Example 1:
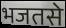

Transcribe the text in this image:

भजतसे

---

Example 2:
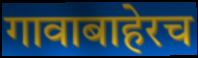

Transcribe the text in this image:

गावाबाहेरच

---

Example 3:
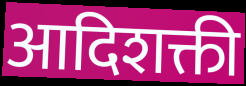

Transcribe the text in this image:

आदिशक्ती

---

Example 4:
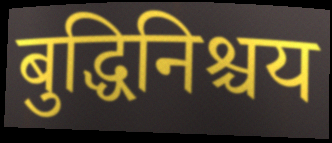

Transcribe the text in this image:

बुद्धिनिश्चय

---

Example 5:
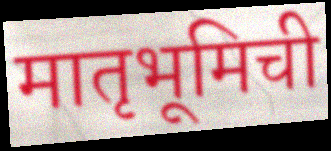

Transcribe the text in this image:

मातृभूमिची